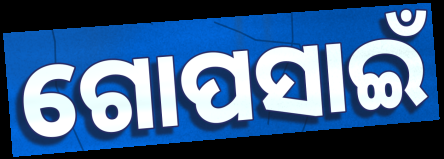
ଗୋପସାଇଁ